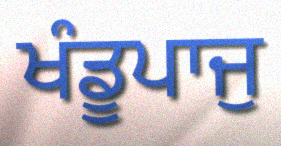
ਖੰਡੂਪਾਜੁ